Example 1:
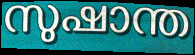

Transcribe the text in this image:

സുഷാന്ത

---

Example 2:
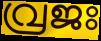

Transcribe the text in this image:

വ്രജഃ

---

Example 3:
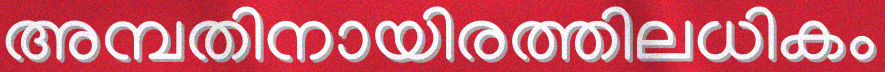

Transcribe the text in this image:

അമ്പതിനായിരത്തിലധികം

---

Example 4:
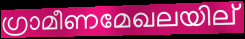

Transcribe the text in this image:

ഗ്രാമീണമേഖലയില്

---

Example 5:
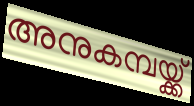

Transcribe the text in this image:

അനുകമ്പയ്ക്ക്